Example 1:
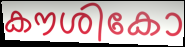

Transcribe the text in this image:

കൗശികോ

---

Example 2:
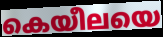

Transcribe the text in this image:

കെയീലയെ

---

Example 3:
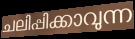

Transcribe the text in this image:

ചലിപ്പിക്കാവുന്ന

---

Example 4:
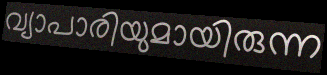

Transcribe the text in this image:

വ്യാപാരിയുമായിരുന്ന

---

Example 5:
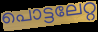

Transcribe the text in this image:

പൊട്ടലേറ്റ